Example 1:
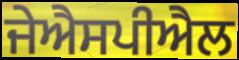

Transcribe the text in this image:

ਜੇਐਸਪੀਐਲ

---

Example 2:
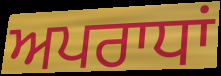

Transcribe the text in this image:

ਅਪਰਾਧਾਂ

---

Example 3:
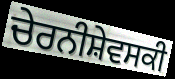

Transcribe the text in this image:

ਚੇਰਨੀਸ਼ੇਵਸਕੀ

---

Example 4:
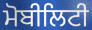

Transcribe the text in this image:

ਮੋਬੀਲਿਟੀ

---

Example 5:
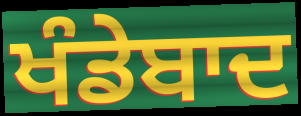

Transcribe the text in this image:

ਖੰਡੇਬਾਦ